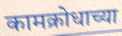
कामक्रोधाच्या